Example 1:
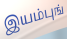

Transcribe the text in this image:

இயம்புங்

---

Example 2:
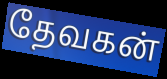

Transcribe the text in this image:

தேவகன்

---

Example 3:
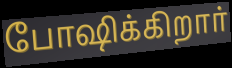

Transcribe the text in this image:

போஷிக்கிறார்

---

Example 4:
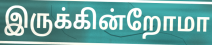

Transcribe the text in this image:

இருக்கின்றோமா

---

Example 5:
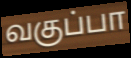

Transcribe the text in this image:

வகுப்பா